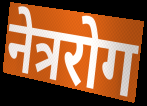
नेत्ररोग